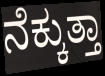
ನೆಕ್ಕುತ್ತಾ